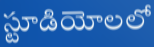
స్టూడియోలలో